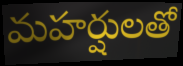
మహర్షులతో